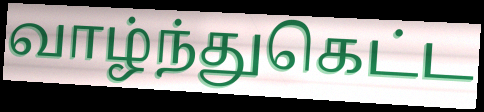
வாழ்ந்துகெட்ட